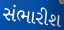
સંભારીશ